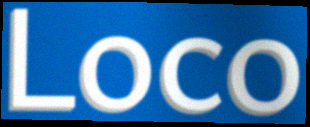
Loco